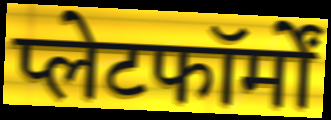
प्लेटफॉर्मों